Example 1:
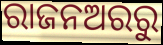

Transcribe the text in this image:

ରାଜନଅରରୁ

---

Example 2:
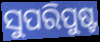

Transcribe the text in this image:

ସୁପରିପୁଷ୍ଟ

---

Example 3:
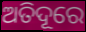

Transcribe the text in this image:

ଅତିଦୂରେ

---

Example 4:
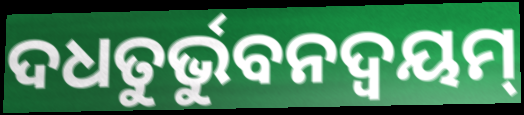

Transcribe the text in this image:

ଦଧତୁର୍ଭୁବନଦ୍ଵୟମ୍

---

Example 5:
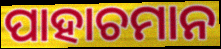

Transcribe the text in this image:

ପାହାଚମାନ